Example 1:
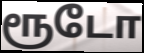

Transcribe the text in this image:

ரூடோ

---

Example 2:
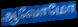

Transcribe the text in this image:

ஆவோமோ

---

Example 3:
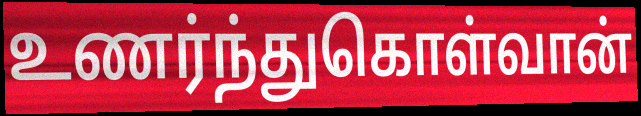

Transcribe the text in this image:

உணர்ந்துகொள்வான்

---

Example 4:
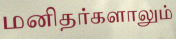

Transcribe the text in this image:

மனிதர்களாலும்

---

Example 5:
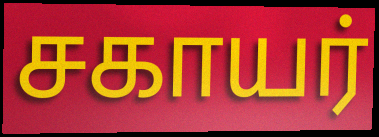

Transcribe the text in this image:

சகாயர்